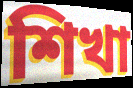
শিখা